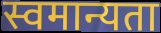
स्वमान्यता